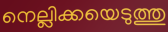
നെല്ലിക്കയെടുത്തു